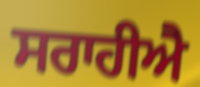
ਸਰਾਹੀਐ